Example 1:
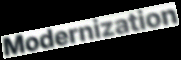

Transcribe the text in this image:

Modernization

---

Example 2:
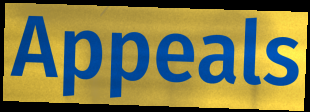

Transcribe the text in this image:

Appeals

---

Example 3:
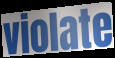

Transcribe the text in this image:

violate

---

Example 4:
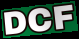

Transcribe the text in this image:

DCF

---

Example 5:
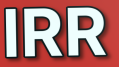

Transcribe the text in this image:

IRR